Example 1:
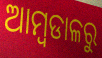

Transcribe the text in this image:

ଆମ୍ବଡାଳରୁ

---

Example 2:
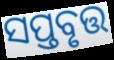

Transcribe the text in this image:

ସପ୍ତବୃତ୍ତ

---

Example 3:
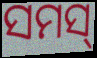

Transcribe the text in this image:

ସମସ୍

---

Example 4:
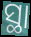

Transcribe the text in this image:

ସ୍ଥା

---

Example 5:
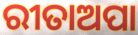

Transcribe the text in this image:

ରୀତାଅପା